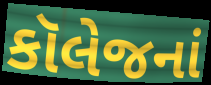
કૉલેજનાં